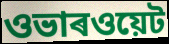
ওভাৰওয়েট